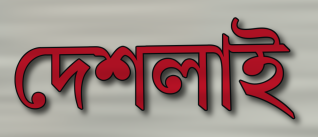
দেশলাই